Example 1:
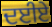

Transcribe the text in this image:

ਦਈਏ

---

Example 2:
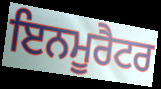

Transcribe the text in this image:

ਇਨਮੂਰੈਟਰ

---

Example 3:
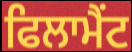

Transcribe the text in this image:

ਫਿਲਾਮੈਂਟ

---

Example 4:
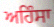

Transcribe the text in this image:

ਅਹਿੰਸਾ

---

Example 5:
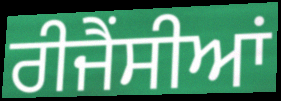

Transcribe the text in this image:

ਰੀਜੈਂਸੀਆਂ